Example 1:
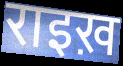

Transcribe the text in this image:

राइख़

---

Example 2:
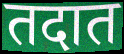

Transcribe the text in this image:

तदात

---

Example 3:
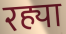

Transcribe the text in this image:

रह्या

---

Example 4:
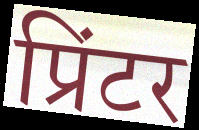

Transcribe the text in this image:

प्रिंटर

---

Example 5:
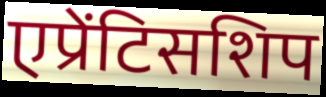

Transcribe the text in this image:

एप्रेंटिसशिप